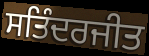
ਸਤਿੰਦਰਜੀਤ